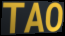
TAO